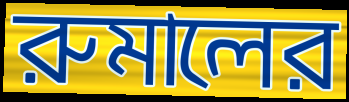
রুমালের